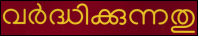
വർദ്ധിക്കുന്നതു